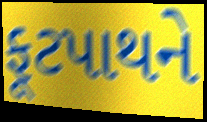
ફૂટપાથને